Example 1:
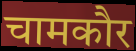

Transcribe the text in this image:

चामकौर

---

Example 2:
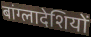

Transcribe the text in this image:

बांग्लादेशियों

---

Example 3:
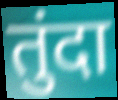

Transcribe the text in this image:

तुंदा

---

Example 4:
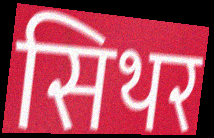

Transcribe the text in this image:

सिथर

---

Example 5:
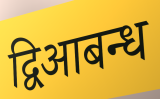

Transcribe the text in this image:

द्विआबन्ध